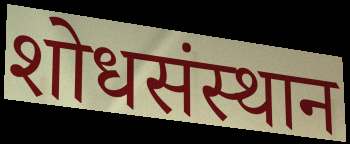
शोधसंस्थान